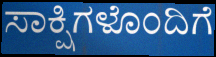
ಸಾಕ್ಷಿಗಳೊಂದಿಗೆ